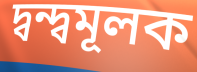
দ্বন্দ্বমূলক